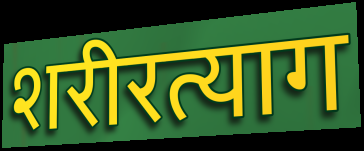
शरीरत्याग